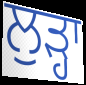
ਲੁੜ੍ਹਾ